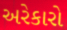
અરેકારો